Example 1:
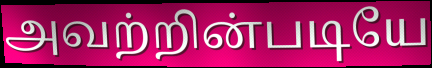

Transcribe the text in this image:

அவற்றின்படியே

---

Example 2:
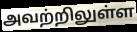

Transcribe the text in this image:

அவற்றிலுள்ள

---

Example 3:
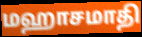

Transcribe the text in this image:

மஹாசமாதி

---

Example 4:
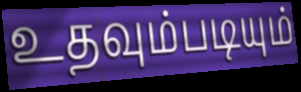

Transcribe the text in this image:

உதவும்படியும்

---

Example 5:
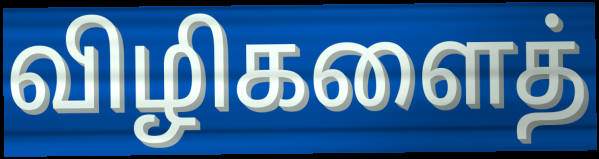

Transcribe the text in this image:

விழிகளைத்